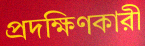
প্রদক্ষিণকারী